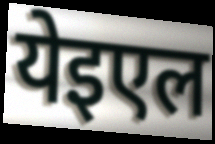
येइएल